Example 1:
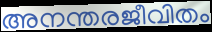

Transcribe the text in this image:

അനന്തരജീവിതം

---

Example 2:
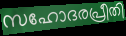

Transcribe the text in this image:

സഹോദരപ്രീതി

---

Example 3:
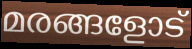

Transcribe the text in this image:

മരങ്ങളോട്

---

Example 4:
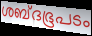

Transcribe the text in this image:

ശബ്ദഭൂപടം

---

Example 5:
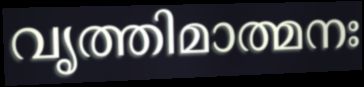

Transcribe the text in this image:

വൃത്തിമാത്മനഃ